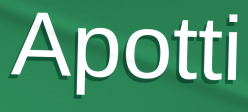
Apotti